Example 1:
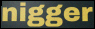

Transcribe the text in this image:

nigger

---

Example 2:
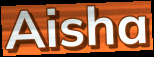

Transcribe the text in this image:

Aisha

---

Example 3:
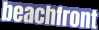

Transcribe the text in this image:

beachfront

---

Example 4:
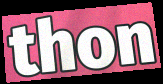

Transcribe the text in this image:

thon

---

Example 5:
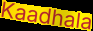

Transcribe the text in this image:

Kaadhala